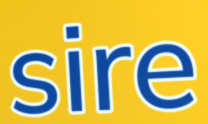
sire